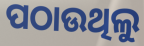
ପଠାଉଥିଲୁ